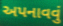
અપનાવવું